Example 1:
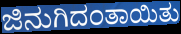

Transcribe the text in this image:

ಜಿನುಗಿದಂತಾಯಿತು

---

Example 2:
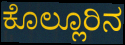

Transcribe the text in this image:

ಕೊಲ್ಲೂರಿನ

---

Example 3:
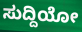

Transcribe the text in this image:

ಸುದ್ದಿಯೋ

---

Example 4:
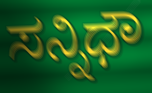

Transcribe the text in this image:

ಸನ್ನಿಧೌ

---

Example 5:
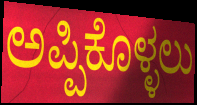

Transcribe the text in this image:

ಅಪ್ಪಿಕೊಳ್ಳಲು